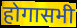
होगासभी